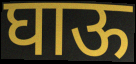
घाऊ